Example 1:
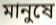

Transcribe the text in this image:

মানুষে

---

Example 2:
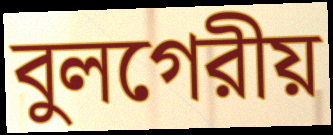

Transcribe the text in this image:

বুলগেরীয়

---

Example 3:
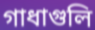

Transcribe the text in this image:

গাধাগুলি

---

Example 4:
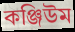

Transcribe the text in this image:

কঞ্জিউম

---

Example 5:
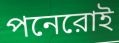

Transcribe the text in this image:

পনেরোই